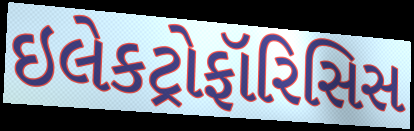
ઇલેકટ્રોફૉરિસિસ